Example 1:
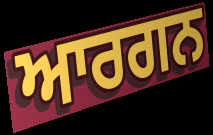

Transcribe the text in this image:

ਆਰਗਨ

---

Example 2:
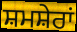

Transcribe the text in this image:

ਸ਼ਮਸ਼ੇਰਾਂ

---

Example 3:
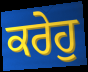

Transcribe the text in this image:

ਕਰੇਹੁ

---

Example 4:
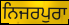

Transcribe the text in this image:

ਨਿਜਰਪੁਰਾ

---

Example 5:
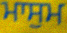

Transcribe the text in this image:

ਮਾਸੁਮ